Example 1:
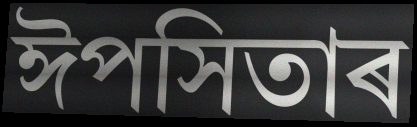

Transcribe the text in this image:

ঈপসিতাৰ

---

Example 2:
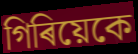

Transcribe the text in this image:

গিৰিয়েকে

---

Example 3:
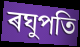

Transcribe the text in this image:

ৰঘুপতি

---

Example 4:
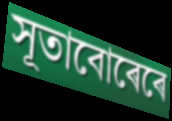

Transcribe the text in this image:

সূতাবোৰেৰে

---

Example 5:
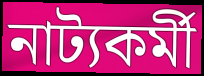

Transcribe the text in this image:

নাট্যকৰ্মী